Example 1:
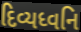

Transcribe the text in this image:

દિવ્યધ્વનિ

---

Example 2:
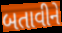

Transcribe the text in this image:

બતાવીને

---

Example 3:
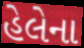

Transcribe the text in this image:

હેલેના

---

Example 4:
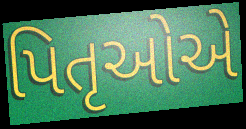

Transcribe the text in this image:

પિતૃઓેએ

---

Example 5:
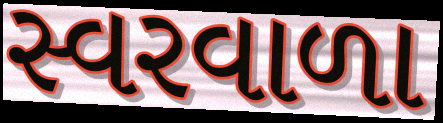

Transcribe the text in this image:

સ્વરવાળા